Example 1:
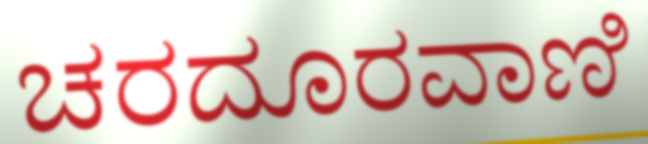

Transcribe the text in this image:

ಚರದೂರವಾಣಿ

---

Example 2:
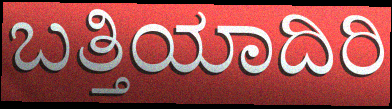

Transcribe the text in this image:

ಬತ್ತಿಯಾದಿರಿ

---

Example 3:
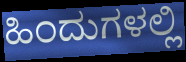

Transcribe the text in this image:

ಹಿಂದುಗಳಲ್ಲಿ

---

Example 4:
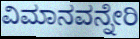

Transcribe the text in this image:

ವಿಮಾನವನ್ನೇರಿ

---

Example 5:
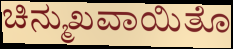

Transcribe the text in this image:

ಚಿನ್ಮುಖವಾಯಿತೊ